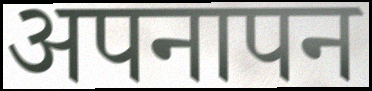
अपनापन